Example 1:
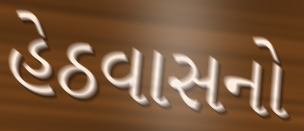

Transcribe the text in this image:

હેઠવાસનો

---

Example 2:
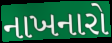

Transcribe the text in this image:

નાખનારો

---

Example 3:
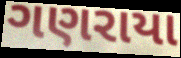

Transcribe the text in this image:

ગણરાયા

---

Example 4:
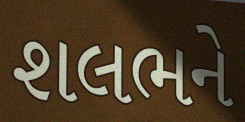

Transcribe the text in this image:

શલભને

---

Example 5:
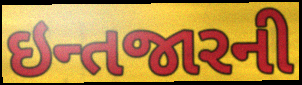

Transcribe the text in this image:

ઇન્તજારની